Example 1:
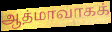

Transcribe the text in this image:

ஆத்மாவாகக்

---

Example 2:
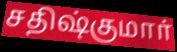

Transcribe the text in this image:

சதிஷ்குமார்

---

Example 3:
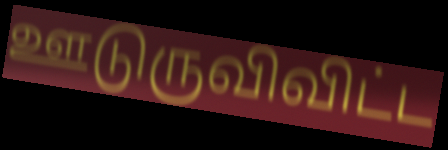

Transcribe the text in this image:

ஊடுருவிவிட்ட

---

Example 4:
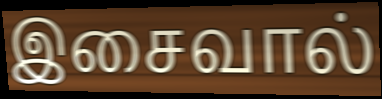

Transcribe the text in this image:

இசைவால்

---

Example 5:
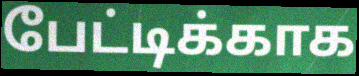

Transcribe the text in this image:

பேட்டிக்காக